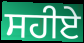
ਸਹੀਏ